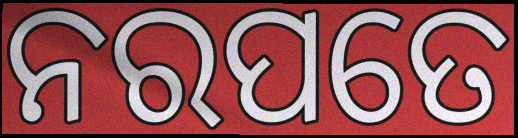
ନରପତେ